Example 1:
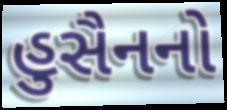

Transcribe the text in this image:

હુસૈનનો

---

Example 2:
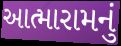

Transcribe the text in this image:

આત્મારામનું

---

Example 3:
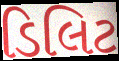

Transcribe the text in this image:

ડિલિટ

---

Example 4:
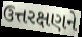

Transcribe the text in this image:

ઉત્તરક્ષણને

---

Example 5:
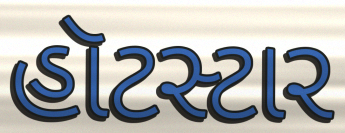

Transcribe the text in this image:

હૉટસ્ટાર